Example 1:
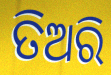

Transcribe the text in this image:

ତିଅରି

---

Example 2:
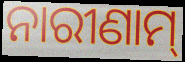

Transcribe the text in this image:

ନାରୀଣାମ୍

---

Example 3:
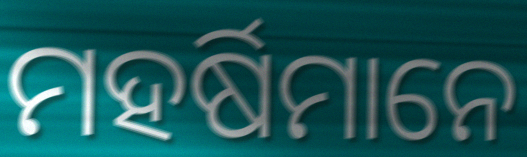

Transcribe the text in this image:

ମହର୍ଷିମାନେ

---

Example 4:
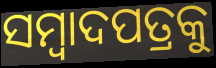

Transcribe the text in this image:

ସମ୍ବାଦପତ୍ରକୁ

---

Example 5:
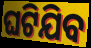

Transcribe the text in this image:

ଘଟିଯିବ